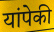
यांपेकी